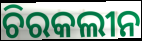
ଚିରକଲୀନ